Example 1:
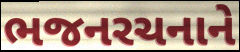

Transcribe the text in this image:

ભજનરચનાને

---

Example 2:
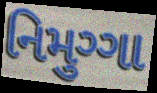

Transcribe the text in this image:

નિમુગ્ગા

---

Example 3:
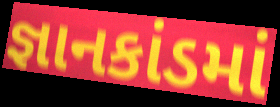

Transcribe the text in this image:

જ્ઞાનકાંડમાં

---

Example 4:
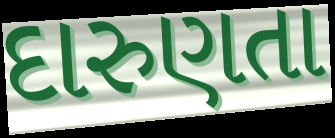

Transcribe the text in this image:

દારુણતા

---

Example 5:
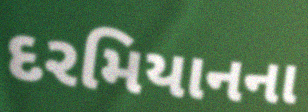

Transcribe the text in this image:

દરમિયાનના